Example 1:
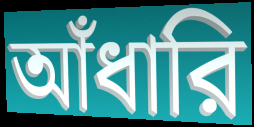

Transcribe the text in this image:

আঁধারি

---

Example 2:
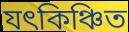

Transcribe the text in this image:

যৎকিঞ্চিত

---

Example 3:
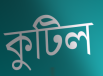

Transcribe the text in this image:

কুটিল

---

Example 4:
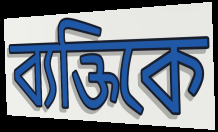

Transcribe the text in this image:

ব্যক্তিকে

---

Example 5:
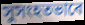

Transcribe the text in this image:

সুসংহতভাবে